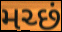
મચ્છં